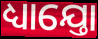
ଧ୍ୟାଯ୍ତୋ